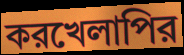
করখেলাপির